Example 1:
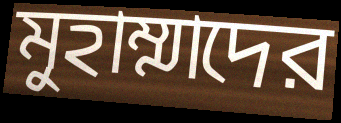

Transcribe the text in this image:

মুহাম্মাদের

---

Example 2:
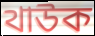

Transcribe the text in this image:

থাউক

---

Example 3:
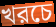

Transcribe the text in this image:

খরচে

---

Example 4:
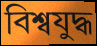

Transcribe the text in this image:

বিশ্বযুদ্ধ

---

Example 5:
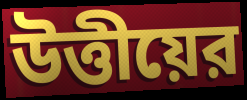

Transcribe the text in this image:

উত্তীয়ের